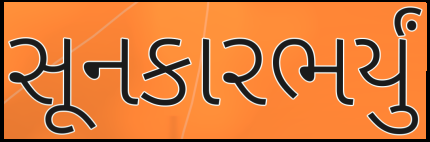
સૂનકારભર્યું